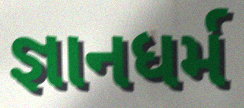
જ્ઞાનધર્મ